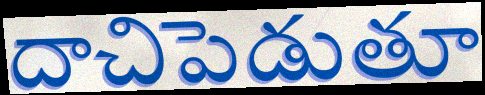
దాచిపెడుతూ